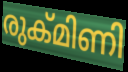
രുക്മിണി